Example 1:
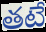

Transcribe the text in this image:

తటే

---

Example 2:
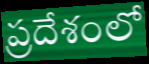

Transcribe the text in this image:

ప్రదేశంలో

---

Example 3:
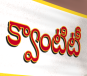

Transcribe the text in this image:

క్వాంటిటీ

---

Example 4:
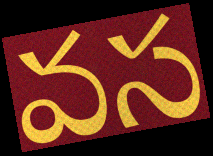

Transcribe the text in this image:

వస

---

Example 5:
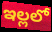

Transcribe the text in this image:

ఇల్లలో